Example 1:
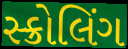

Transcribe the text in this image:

સ્ક્રોલિંગ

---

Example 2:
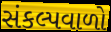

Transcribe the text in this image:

સંકલ્પવાળો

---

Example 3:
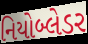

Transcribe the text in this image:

નિયોબ્લેડર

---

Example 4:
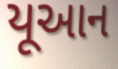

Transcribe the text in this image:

યૂઆન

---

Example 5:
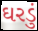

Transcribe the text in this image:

ઘરડું